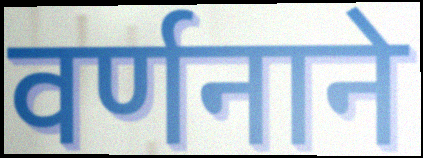
वर्णनाने